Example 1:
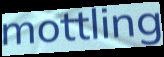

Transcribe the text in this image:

mottling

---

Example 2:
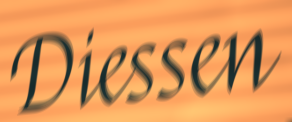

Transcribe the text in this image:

Diessen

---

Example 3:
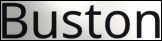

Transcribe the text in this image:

Buston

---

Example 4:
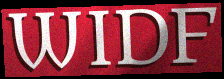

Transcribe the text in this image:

WIDF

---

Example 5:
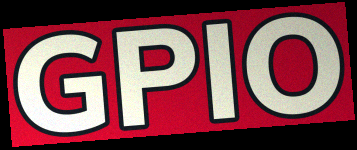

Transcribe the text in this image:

GPIO